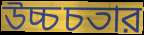
উচ্চচতার